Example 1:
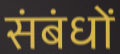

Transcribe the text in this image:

संबंधों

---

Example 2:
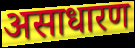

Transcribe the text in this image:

असाधारण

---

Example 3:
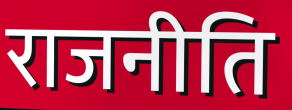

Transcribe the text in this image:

राजनीति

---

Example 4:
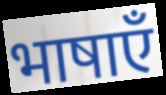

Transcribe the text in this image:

भाषाएँ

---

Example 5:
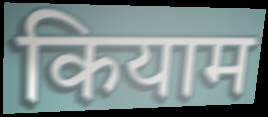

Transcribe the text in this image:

कियाम